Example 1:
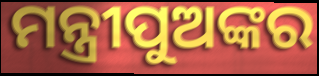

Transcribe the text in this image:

ମନ୍ତ୍ରୀପୁଅଙ୍କର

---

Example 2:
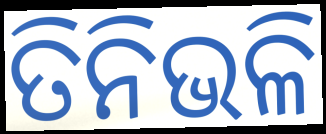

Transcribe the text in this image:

ତିନିଭଳି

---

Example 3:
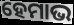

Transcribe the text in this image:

ହେମାଭ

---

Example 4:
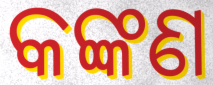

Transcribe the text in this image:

କଙ୍କଣ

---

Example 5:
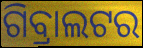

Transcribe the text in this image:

ଗିବ୍ରାଲଟର